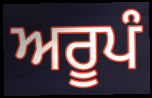
ਅਰੂਪੰ